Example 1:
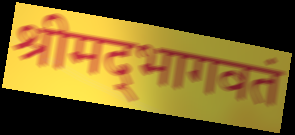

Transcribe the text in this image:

श्रीमद्‌भागवतं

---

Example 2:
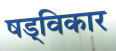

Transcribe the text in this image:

षड्‌विकार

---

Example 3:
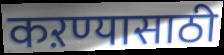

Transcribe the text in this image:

कऱण्यासाठी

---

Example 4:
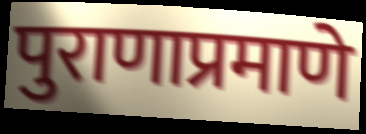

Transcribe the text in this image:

पुराणाप्रमाणे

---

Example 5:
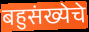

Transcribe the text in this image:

बहुसंख्येचे